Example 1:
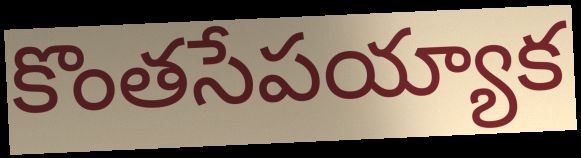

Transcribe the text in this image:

కొంతసేపయ్యాక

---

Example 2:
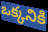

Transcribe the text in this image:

ఒక్కనికి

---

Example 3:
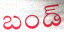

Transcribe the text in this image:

బండ్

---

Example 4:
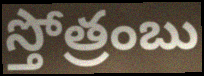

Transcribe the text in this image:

స్తోత్రంబు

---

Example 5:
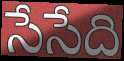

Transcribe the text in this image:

సేసేది